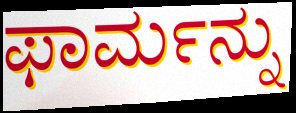
ಫಾರ್ಮನ್ನು